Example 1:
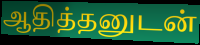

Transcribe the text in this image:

ஆதித்தனுடன்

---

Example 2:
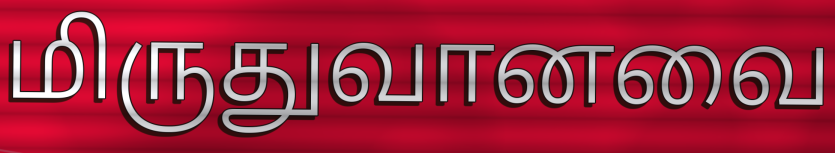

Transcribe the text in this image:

மிருதுவானவை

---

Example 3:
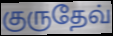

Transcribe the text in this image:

குருதேவ்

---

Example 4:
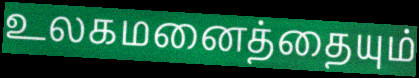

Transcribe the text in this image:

உலகமனைத்தையும்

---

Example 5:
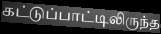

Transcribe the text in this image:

கட்டுப்பாட்டிலிருந்த